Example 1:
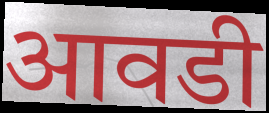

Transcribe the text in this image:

आवडी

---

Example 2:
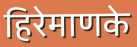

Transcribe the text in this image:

हिरेमाणके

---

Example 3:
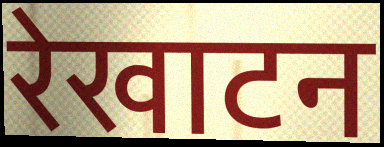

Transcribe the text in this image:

रेखाटन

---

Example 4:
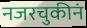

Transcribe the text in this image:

नजरचुकीनं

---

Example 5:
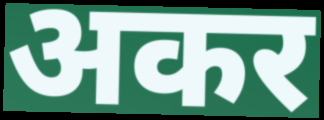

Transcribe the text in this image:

अकर